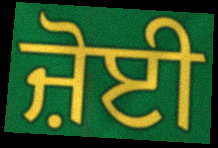
ਜ਼ੋਈ